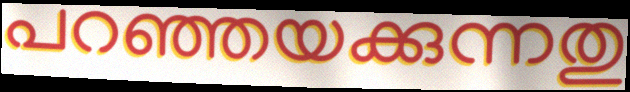
പറഞ്ഞയക്കുന്നതു